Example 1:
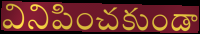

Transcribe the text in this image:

వినిపించకుండా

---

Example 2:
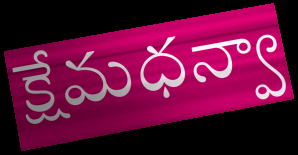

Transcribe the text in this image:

క్షేమధన్వా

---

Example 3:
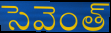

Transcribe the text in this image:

సెవెంత్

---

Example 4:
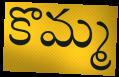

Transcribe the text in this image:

కొమ్మ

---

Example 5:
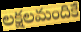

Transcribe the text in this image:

లక్షలమందికే